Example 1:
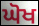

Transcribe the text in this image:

ਘੋਖ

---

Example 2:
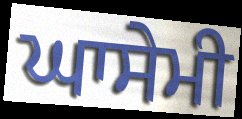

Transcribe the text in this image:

ਘਾਸੇਮੀ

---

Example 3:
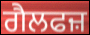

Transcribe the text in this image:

ਗੈਲਫਜ਼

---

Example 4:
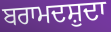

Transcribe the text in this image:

ਬਰਾਮਦਸ਼ੁਦਾ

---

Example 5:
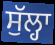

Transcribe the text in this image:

ਸੁੱਲ੍ਹਾ